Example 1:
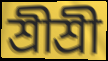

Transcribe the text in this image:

শ্ৰীশ্ৰী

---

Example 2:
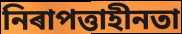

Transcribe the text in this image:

নিৰাপত্তাহীনতা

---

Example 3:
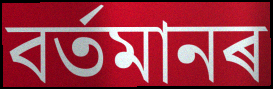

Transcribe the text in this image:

বৰ্তমানৰ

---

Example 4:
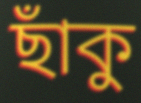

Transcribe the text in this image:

ছাঁকু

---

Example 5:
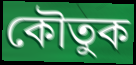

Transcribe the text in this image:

কৌতুক